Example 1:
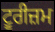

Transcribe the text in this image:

ਟੂਰੀਜ਼ਮ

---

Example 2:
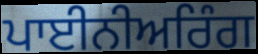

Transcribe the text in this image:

ਪਾਈਨੀਅਰਿੰਗ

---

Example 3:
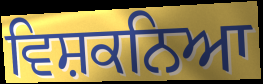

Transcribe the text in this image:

ਵਿਸ਼ਕਨਿਆ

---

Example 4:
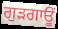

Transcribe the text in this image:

ਗੁੜਗਾਊਂ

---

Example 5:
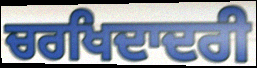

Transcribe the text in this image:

ਚਰਖਿਦਾਦਰੀ